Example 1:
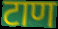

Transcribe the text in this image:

टाण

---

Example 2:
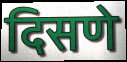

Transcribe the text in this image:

दिसणे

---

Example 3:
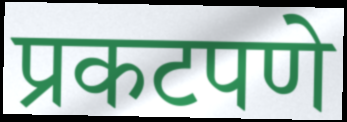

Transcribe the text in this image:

प्रकटपणे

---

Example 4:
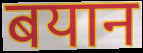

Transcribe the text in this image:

बयान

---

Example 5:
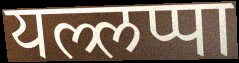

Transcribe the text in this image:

यल्लप्पा